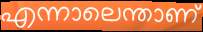
എന്നാലെന്താണ്